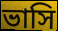
ভাসি